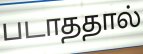
படாததால்